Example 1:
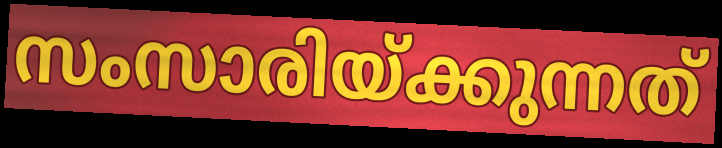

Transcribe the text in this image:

സംസാരിയ്ക്കുന്നത്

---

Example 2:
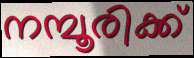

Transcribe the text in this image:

നമ്പൂരിക്ക്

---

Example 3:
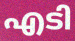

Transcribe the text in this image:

എടി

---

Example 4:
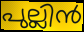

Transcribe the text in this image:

പുല്ലിൻ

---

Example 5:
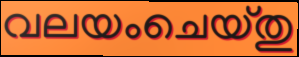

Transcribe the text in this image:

വലയംചെയ്തു